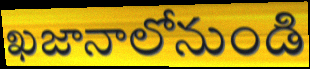
ఖజానాలోనుండి